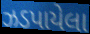
ઝડપાયેલા